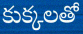
కుక్కలతో